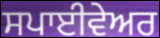
ਸਪਾਈਵੇਅਰ